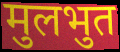
मुलभुत